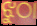
ଝୁଠା